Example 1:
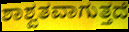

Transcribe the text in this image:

ಶಾಶ್ವತವಾಗುತ್ತದೆ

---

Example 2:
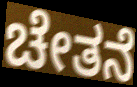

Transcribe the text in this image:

ಚೇತನೆ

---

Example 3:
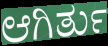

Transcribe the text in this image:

ಆಗಿರ್ತು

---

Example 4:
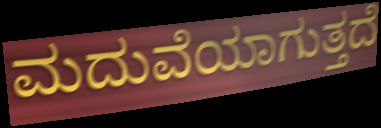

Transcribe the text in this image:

ಮದುವೆಯಾಗುತ್ತದೆ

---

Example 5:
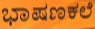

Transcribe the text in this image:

ಭಾಷಣಕಲೆ